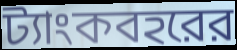
ট্যাংকবহরের